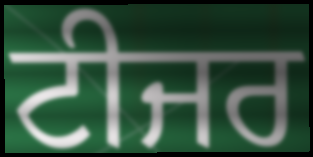
ਟੀਜਰ